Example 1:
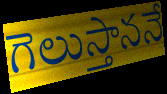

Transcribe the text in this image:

గెలుస్తాననే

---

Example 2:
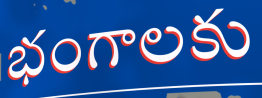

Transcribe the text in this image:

భంగాలకు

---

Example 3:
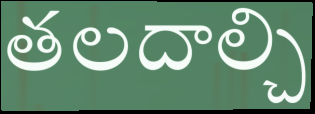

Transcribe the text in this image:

తలదాల్చి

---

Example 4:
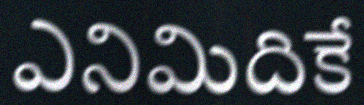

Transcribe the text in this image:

ఎనిమిదికే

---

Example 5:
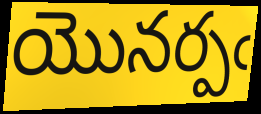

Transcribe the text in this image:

యొనర్పఁ